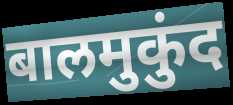
बालमुकुंद